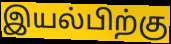
இயல்பிற்கு